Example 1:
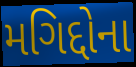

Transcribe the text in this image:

મગિદ્દોના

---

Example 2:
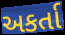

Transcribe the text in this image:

અકર્તા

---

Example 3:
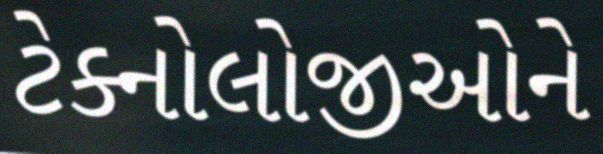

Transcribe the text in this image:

ટેક્નોલોજીઓને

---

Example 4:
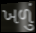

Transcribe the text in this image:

ખળું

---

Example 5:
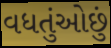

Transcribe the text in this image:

વધતુંઓછું